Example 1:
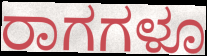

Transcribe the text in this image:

ರಾಗಗಳೂ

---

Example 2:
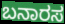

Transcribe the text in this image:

ಬನಾರಸ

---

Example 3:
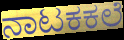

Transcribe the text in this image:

ನಾಟಕಕಲೆ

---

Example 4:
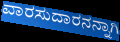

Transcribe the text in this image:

ವಾರಸುದಾರನನ್ನಾಗಿ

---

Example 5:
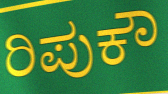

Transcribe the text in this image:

ರಿಪುಕೌ